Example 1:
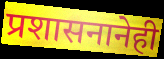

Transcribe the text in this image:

प्रशासनानेही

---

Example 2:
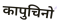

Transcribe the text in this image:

कापुचिनो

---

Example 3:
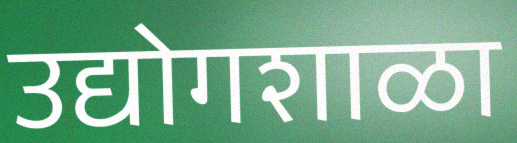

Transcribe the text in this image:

उद्योगशाळा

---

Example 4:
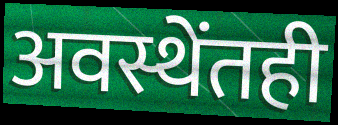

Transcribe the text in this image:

अवस्थेंतही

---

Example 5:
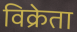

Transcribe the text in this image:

विक्रेता